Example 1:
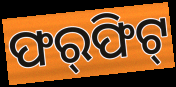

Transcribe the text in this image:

ଫର୍‍ଫିଟ୍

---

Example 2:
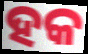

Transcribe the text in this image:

ହକ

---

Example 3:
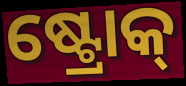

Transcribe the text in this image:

ଷ୍ଟ୍ରୋକ୍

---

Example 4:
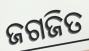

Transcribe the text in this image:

ଜଗଜିତ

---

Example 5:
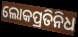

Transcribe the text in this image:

ଲୋକପ୍ରତିନିଧ